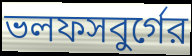
ভলফসবুর্গের